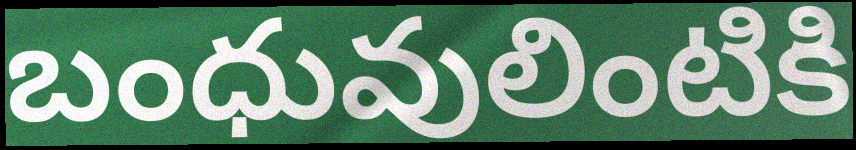
బంధువులింటికి